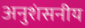
अनुशंसनीय